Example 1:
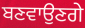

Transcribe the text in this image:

ਬਣਵਾਉਣਗੇ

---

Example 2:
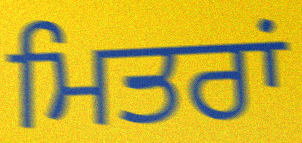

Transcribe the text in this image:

ਮਿਤਰਾਂ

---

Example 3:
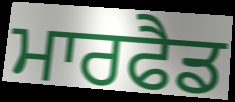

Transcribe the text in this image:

ਮਾਰਫੈਡ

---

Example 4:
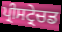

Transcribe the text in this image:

ਪ੍ਰੀਸਟ੍ਰੇਚਡ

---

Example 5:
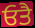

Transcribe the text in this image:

ਓਤੈ